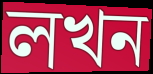
লখন